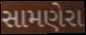
સામણેરા